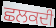
ਛਲਕਦੀ